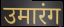
उमारंग